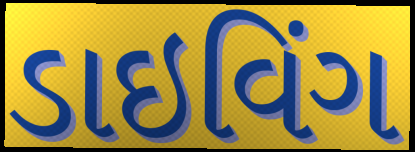
ડાઇવિંગ